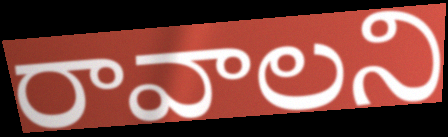
రావాలని